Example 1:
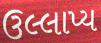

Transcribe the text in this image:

ઉલ્લાપ્ય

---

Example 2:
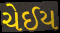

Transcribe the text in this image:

ચેઈય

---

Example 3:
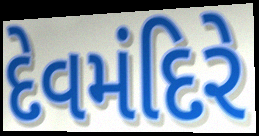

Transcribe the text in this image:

દેવમંદિરે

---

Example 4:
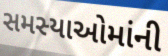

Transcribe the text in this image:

સમસ્યાઓમાંની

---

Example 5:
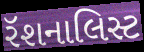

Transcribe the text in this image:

રૅશનાલિસ્ટ